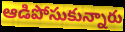
ఆడిపోసుకున్నారు